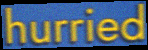
hurried